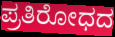
ಪ್ರತಿರೋಧದ